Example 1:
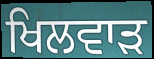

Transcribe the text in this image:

ਖਿਲਵਾੜ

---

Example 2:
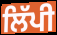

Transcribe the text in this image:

ਲਿੱਪੀ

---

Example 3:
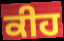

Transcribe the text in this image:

ਕੀਹ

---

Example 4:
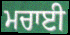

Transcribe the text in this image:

ਮਚਾਈ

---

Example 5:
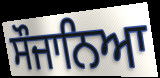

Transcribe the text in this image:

ਸੌਜਾਨਿਆ